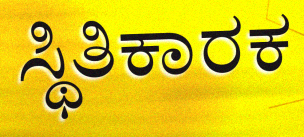
ಸ್ಥಿತಿಕಾರಕ